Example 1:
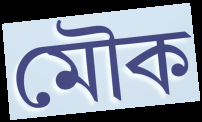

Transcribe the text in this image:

মৌক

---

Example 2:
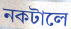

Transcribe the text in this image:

নকটালে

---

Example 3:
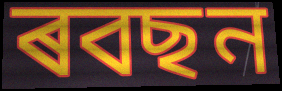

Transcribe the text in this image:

ৰবছন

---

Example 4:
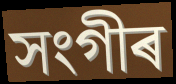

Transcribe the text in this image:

সংগীৰ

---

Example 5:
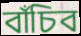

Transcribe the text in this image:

বাঁচিব